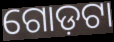
ଗୋଡ଼ଟା